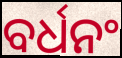
ବର୍ଧନଂ